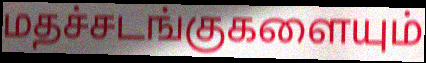
மதச்சடங்குகளையும்